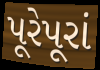
પૂરેપૂરાં